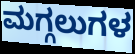
ಮಗ್ಗಲುಗಳ